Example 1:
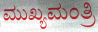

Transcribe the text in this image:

ಮುಖ್ಯಮಂತ್ರಿ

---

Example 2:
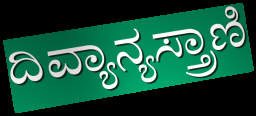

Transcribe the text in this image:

ದಿವ್ಯಾನ್ಯಸ್ತ್ರಾಣಿ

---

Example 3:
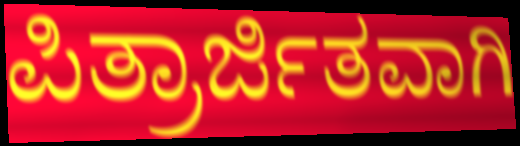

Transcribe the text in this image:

ಪಿತ್ರಾರ್ಜಿತವಾಗಿ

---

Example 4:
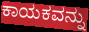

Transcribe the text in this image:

ಕಾಯಕವನ್ನು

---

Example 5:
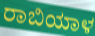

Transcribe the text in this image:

ರಾಬಿಯಾಳ